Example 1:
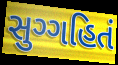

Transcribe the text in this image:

સુગ્ગહિતં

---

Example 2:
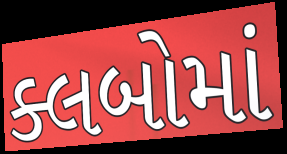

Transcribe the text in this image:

ક્લબોમાં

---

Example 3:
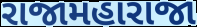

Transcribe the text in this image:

રાજામહારાજા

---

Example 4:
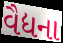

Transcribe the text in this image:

વૈદ્યના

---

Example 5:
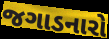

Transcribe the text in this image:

જગાડનારો